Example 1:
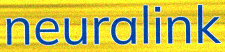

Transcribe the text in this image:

neuralink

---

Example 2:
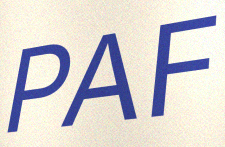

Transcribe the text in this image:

PAF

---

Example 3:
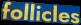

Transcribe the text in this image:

follicles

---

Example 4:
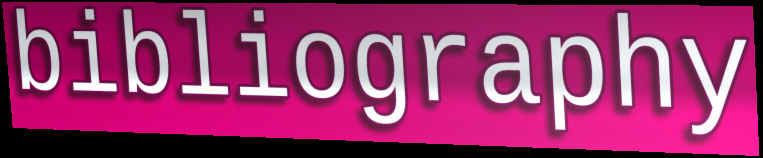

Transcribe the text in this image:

bibliography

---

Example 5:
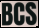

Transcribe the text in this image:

BCS